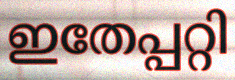
ഇതേപ്പറ്റി